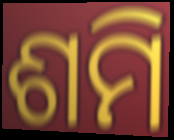
ଶମି